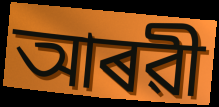
আৰৱী